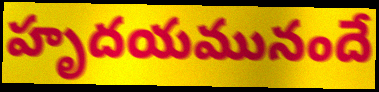
హృదయమునందే